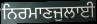
ਨਿਰਮਾਣਜੁਲਾਈ